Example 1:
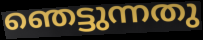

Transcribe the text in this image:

ഞെട്ടുന്നതു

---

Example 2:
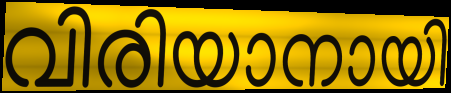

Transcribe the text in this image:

വിരിയാനായി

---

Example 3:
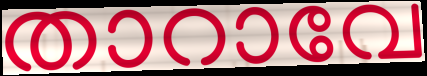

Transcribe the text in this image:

താറാവേ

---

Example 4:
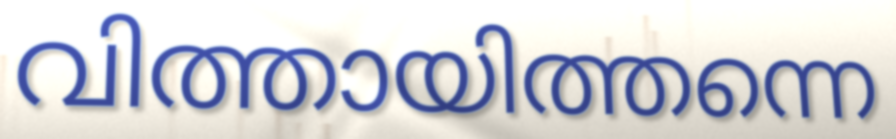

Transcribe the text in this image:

വിത്തായിത്തന്നെ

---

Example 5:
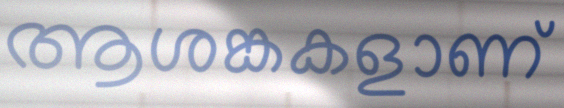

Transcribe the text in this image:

ആശങ്കകളാണ്